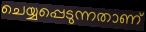
ചെയ്യപ്പെടുന്നതാണ്